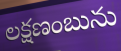
లక్షణంబును